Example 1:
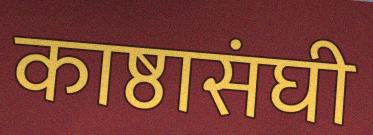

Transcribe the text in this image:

काष्ठासंघी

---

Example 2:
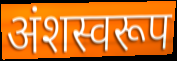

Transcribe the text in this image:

अंशस्वरूप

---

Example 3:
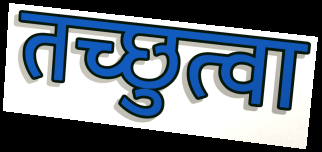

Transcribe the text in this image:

तच्छुत्वा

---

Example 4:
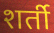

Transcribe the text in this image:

शर्ती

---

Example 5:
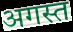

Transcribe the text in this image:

अगस्त